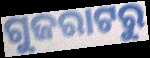
ଗୁଜରାଟରୁ